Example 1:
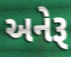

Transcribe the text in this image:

અનેરૂ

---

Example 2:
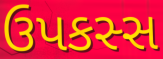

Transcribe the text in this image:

ઉપકસ્સ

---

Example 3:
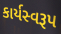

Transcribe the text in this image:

કાર્યસ્વરૂપ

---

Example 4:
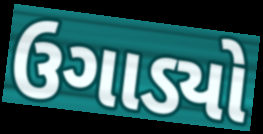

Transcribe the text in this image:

ઉગાડ્યો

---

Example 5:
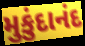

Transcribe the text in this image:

મુકુંદાનંદ